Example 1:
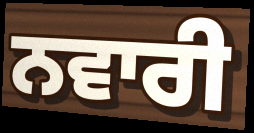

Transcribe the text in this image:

ਨਵਾਰੀ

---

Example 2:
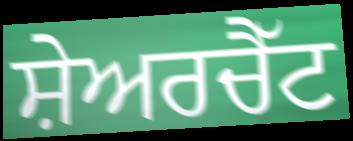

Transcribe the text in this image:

ਸ਼ੇਅਰਚੈੱਟ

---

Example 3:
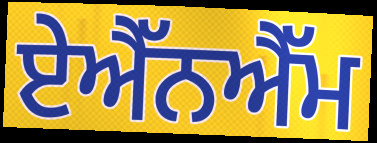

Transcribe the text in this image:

ਏਐੱਨਐੱਮ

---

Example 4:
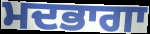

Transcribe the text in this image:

ਮਦਭਾਗਾ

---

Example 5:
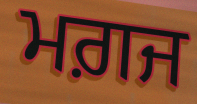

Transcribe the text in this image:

ਮਗ਼ਜ